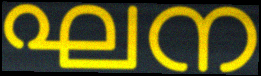
ഘന